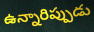
ఉన్నారిప్పుడు